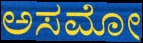
ಅಸಮೋ